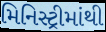
મિનિસ્ટ્રીમાંથી